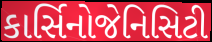
કાર્સિનોજેનિસિટી